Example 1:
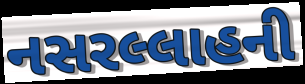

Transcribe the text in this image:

નસરલ્લાહની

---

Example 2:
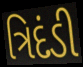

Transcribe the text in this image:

ત્રિદંડી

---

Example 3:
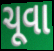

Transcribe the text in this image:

ચૂવા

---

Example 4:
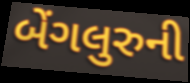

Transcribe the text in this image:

બેંગલુરુની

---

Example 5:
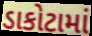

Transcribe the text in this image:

ડાકોટામાં